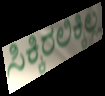
ಸಿಕ್ಕಿರಲಿಕ್ಕಿಲ್ಲ